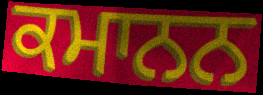
ਕਮਾਨਨ